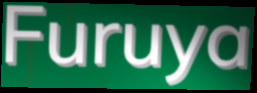
Furuya